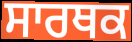
ਸਾਰਥਕ